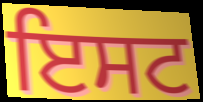
ਇਸਟ